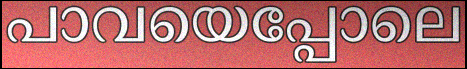
പാവയെപ്പോലെ